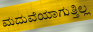
ಮದುವೆಯಾಗುತ್ತಿಲ್ಲ